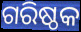
ଗରିଷ୍ଠକ